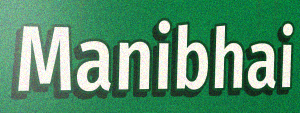
Manibhai